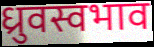
ध्रुवस्वभाव